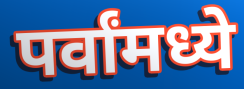
पर्वांमध्ये